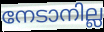
നേടാനില്ല